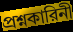
প্রশ্নকারিনী